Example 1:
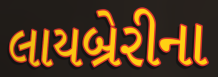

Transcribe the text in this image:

લાયબ્રેરીના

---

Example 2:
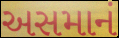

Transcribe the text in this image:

અસમાનં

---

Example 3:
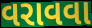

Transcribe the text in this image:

વરાવવા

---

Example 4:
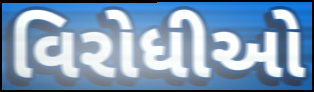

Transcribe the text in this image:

વિરોધીઓ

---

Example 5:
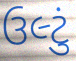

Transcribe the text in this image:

ઉલ્ટું